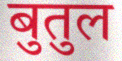
बुतुल